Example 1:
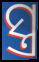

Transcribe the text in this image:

ସ୍ତ୍ର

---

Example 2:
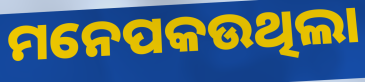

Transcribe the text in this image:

ମନେପକଉଥିଲା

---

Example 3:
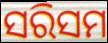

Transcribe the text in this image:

ସରିସମ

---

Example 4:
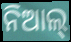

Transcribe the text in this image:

ନିଆଲ୍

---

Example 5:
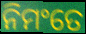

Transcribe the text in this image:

ନିମଂତେ